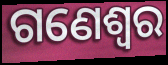
ଗଣେଶ୍ୱର